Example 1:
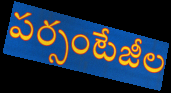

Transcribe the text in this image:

పర్సంటేజీల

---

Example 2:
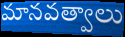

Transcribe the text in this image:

మానవత్వాలు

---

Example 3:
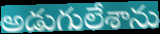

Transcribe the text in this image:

అడుగులేశాను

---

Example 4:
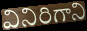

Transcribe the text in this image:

వినిరిగాని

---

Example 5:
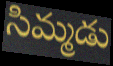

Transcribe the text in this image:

సిమ్మడు